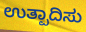
ಉತ್ಪಾದಿಸು